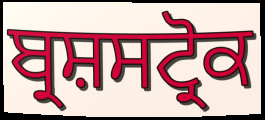
ਬ੍ਰਸ਼ਸਟ੍ਰੋਕ